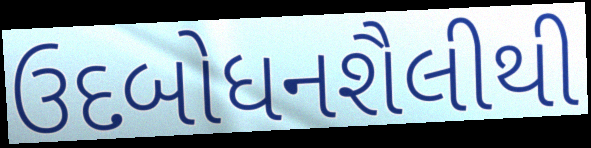
ઉદબોધનશૈલીથી